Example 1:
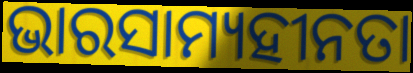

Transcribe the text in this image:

ଭାରସାମ୍ୟହୀନତା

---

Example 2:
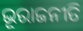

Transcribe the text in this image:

ଭୂରାଜନୀତି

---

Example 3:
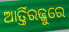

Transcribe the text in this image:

ଆର୍ତ୍ତିରଜ୍ଜୁରେ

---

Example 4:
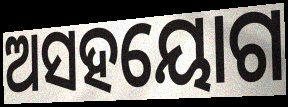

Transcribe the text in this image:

ଅସହୟୋଗ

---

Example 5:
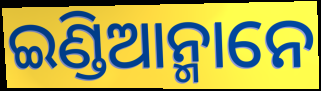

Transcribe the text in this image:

ଇଣ୍ଡିଆନ୍ମାନେ